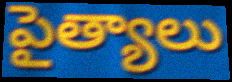
పైత్యాలు